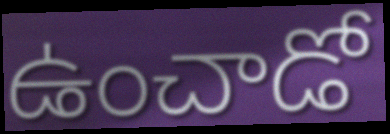
ఉంచాడో